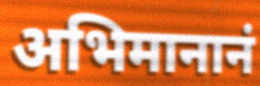
अभिमानानं